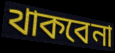
থাকবেনা